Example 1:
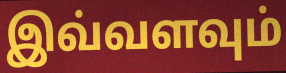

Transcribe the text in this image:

இவ்வளவும்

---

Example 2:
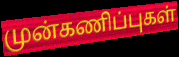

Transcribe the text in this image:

முன்கணிப்புகள்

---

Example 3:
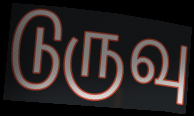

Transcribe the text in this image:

டுருவு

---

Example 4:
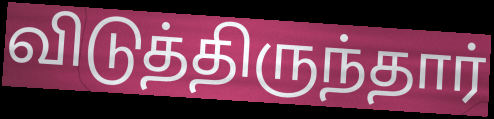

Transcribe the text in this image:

விடுத்திருந்தார்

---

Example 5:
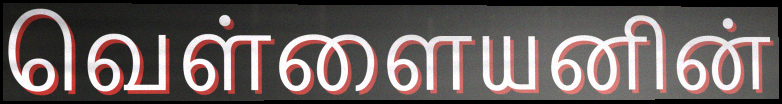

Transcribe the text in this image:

வெள்ளையனின்